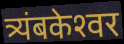
त्र्यंबकेश्वर